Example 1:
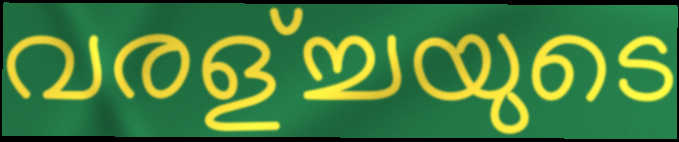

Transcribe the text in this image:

വരള്ച്ചയുടെ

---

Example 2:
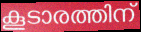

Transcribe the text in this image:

കൂടാരത്തിന്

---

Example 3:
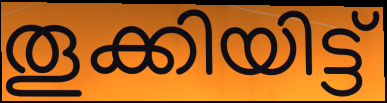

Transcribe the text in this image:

തൂക്കിയിട്ട്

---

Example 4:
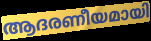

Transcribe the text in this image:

ആദരണീയമായി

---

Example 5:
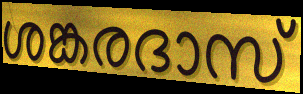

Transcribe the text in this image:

ശങ്കരദാസ്